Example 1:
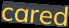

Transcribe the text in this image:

cared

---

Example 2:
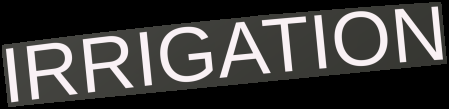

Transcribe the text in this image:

IRRIGATION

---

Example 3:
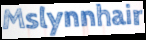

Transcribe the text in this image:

Mslynnhair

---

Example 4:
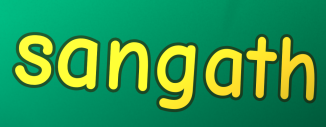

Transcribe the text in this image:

sangath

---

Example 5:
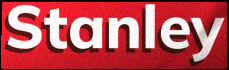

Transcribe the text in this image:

Stanley